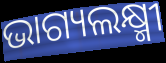
ଭାଗ୍ୟଲକ୍ଷ୍ମୀ